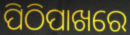
ପିଠିପାଖରେ